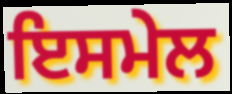
ਇਸਮੇਲ